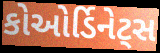
કોઓર્ડિનેટ્સ